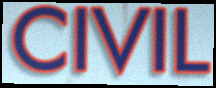
CIVIL